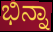
ಭಿನ್ನಾ